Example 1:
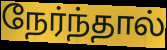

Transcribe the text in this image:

நேர்ந்தால்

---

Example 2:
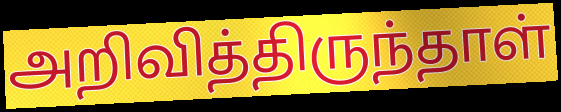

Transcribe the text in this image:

அறிவித்திருந்தாள்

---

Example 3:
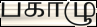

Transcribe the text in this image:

பகாழு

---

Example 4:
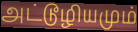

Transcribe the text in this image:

அட்டூழியமும்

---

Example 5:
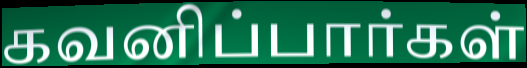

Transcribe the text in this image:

கவனிப்பார்கள்